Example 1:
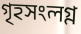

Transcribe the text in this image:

গৃহসংলগ্ন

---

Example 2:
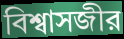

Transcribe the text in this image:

বিশ্বাসজীর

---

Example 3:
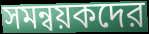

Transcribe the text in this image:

সমন্বয়কদের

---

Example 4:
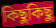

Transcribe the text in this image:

কিছুকিছু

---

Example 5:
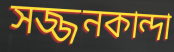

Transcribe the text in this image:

সজ্জনকান্দা